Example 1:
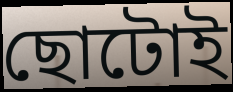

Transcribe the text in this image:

ছোটোই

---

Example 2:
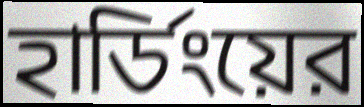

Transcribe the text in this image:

হার্ডিংয়ের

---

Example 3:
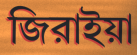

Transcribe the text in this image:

জিরাইয়া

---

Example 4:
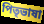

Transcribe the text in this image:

পিতৃভাষা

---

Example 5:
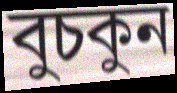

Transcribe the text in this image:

বুচকুন